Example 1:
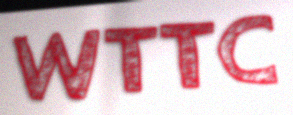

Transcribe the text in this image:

WTTC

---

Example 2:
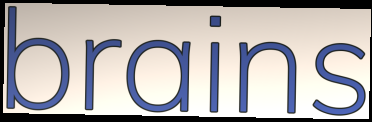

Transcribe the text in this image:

brains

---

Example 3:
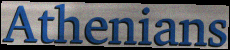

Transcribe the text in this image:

Athenians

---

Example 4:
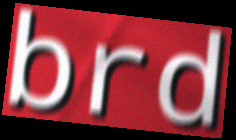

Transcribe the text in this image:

brd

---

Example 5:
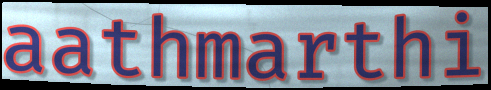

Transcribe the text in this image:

aathmarthi